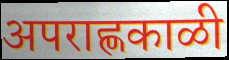
अपराह्णकाळी